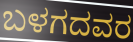
ಬಳಗದವರ